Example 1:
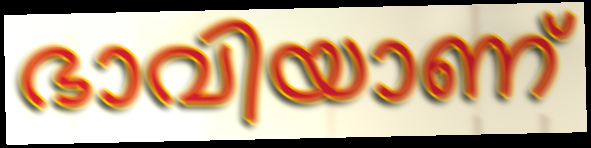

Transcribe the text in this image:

ഭാവിയാണ്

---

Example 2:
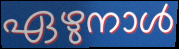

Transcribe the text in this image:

ഏഴുനാൾ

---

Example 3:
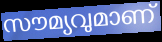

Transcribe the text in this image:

സൗമ്യവുമാണ്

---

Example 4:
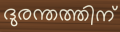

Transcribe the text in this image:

ദുരന്തത്തിന്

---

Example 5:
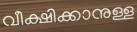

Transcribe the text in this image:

വീക്ഷിക്കാനുള്ള